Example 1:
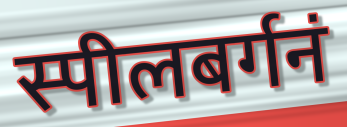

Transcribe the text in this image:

स्पीलबर्गनं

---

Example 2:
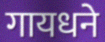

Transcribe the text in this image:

गायधने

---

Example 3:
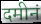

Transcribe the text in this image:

दमीनं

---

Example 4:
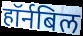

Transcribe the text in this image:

हॉर्नबिल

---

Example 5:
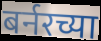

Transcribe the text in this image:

बर्नरच्या